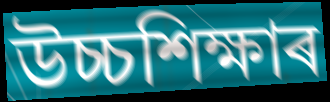
উচ্চশিক্ষাৰ